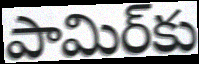
పామిర్‌కు